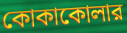
কোকাকোলার